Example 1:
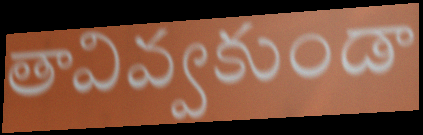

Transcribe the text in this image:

తావివ్వకుండా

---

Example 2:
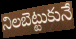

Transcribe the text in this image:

నిలబెట్టుకునే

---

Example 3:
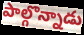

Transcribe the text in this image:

పాల్గొన్నాడు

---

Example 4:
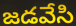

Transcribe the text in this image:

జడవేసి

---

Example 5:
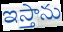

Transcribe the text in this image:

ఇస్తాను